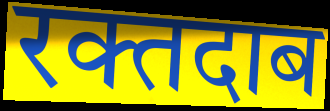
रक्तदाब